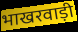
भाखरवाड़ी